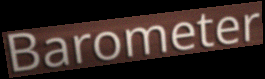
Barometer